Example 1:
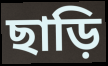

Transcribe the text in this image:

ছাড়ি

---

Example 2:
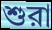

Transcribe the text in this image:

শুরা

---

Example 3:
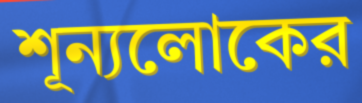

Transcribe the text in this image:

শূন্যলোকের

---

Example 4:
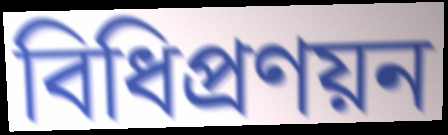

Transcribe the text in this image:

বিধিপ্রণয়ন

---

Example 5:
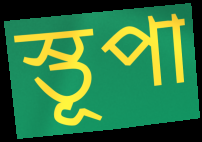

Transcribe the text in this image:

স্তূপা